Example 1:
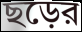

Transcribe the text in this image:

ছড়ের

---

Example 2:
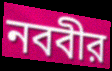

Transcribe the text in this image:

নববীর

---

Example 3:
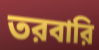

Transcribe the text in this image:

তরবারি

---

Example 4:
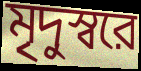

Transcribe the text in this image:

মৃদুস্বরে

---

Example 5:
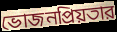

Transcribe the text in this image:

ভোজনপ্রিয়তার